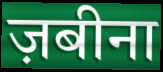
ज़बीना